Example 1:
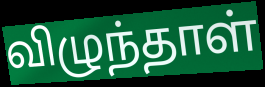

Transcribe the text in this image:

விழுந்தாள்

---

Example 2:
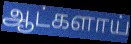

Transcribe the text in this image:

ஆட்களாய்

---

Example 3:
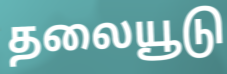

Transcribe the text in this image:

தலையூடு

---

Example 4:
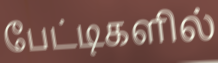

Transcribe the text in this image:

பேட்டிகளில்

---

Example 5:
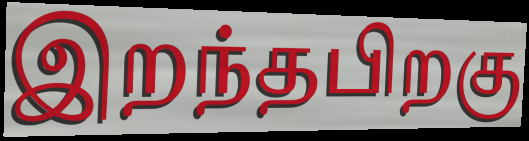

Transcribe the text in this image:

இறந்தபிறகு